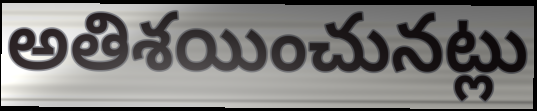
అతిశయించునట్లు